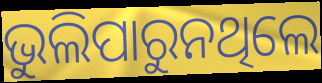
ଭୁଲିପାରୁନଥିଲେ